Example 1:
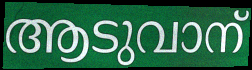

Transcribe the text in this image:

ആടുവാന്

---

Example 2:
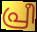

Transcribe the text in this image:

പ്രീ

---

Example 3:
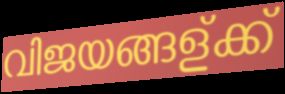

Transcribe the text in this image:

വിജയങ്ങള്ക്ക്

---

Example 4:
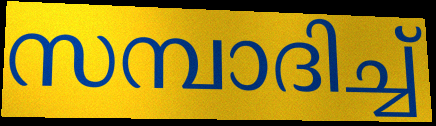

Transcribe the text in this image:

സമ്പാദിച്ച്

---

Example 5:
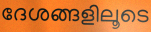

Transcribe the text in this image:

ദേശങ്ങളിലൂടെ